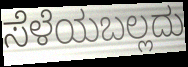
ಸೆಳೆಯಬಲ್ಲದು